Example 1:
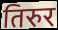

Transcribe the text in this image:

तिरुर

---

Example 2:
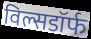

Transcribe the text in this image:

विल्सडॉर्फ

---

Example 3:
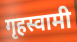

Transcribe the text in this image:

गृहस्वामी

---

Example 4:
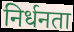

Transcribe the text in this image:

निर्धनता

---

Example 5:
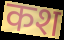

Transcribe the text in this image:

कश